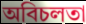
অবিচলতা